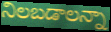
నిలబడాలన్నా